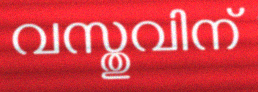
വസ്തുവിന്